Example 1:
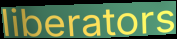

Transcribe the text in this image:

liberators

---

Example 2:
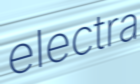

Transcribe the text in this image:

electra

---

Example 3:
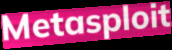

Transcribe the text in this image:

Metasploit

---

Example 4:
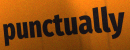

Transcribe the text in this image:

punctually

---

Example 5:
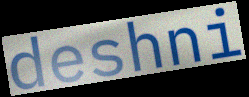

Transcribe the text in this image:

deshni